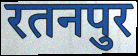
रतनपुर